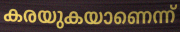
കരയുകയാണെന്ന്